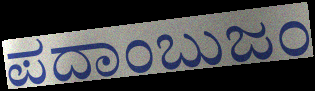
ಪದಾಂಬುಜಂ